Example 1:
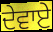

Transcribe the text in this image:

ਦੇਵਾਏ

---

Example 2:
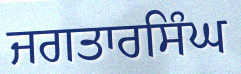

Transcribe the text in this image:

ਜਗਤਾਰਸਿੰਘ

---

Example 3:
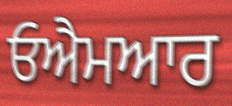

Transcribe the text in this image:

ਓਐਮਆਰ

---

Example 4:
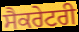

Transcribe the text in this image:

ਸੈਕਰੇਟਰੀ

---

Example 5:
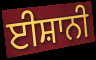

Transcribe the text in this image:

ਈਸ਼ਾਨੀ